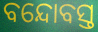
ବନ୍ଦୋବସ୍ତ